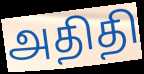
அதிதி